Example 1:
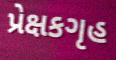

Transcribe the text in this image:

પ્રેક્ષકગૃહ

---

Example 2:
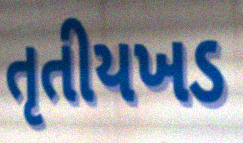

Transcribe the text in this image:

તૃતીયખડ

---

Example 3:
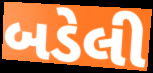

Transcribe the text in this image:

બડેલી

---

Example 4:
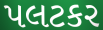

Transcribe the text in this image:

પલટકર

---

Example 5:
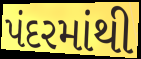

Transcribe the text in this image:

પંદરમાંથી